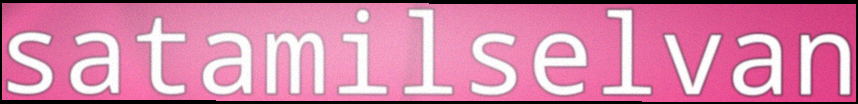
satamilselvan